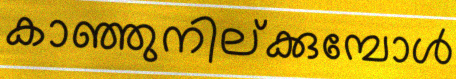
കാഞ്ഞുനില്ക്കുമ്പോൾ